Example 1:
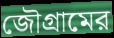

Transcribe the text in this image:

জৌগ্রামের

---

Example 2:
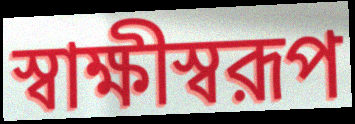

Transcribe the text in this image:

স্বাক্ষীস্বরূপ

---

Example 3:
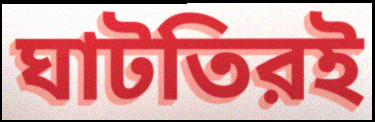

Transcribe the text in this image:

ঘাটতিরই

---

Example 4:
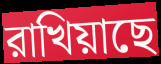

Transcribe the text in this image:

রাখিয়াছে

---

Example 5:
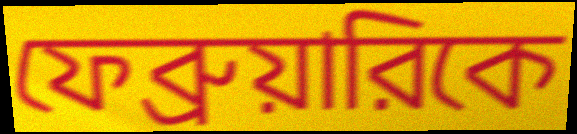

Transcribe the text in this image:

ফেব্রুয়ারিকে